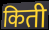
किती